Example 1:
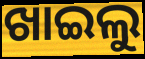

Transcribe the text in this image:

ଖାଇଲୁ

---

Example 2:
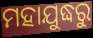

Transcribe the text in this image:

ମହାଯୁଦ୍ଧରୁ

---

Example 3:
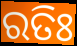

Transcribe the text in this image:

ରତିଃ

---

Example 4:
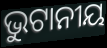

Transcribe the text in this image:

ଭୁଟାନୀୟ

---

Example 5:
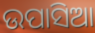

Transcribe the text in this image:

ଉପାସିଆ